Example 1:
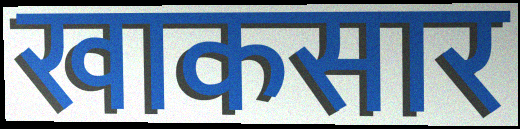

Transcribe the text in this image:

खाकसार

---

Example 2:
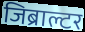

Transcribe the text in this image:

जिब्राल्टर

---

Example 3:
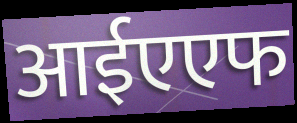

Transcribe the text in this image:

आईएएफ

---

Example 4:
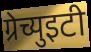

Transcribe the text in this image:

ग्रेच्युइटी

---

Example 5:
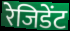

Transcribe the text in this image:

रेजिडेंट